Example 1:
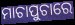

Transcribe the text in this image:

ମାଚାପୁଚାରେ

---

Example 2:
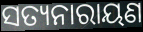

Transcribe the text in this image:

ସତ୍ଯନାରାୟଣ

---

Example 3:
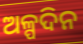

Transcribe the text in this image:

ଅଳ୍ପଦିନ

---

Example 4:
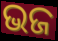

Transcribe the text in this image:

ଭଜ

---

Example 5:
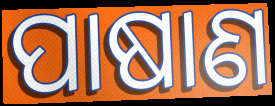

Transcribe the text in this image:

ପାଷାଣ